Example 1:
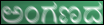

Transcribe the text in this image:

ಅಂಗಣದ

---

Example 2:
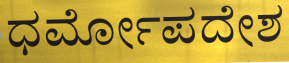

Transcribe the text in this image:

ಧರ್ಮೋಪದೇಶ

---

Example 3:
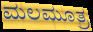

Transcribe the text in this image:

ಮಲಮೂತ್ರ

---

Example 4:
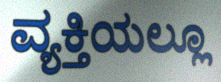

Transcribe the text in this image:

ವ್ಯಕ್ತಿಯಲ್ಲೂ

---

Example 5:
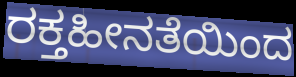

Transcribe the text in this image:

ರಕ್ತಹೀನತೆಯಿಂದ